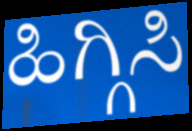
ಹಿಗ್ಗಿಸಿ